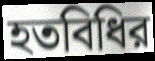
হতবিধির